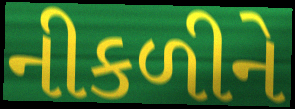
નીકળીને